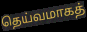
தெய்வமாகத்